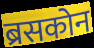
ब्रसकोन